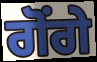
ਗੋਂਗੇ